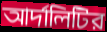
আর্দালিটির